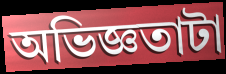
অভিজ্ঞতাটা